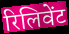
रिलिवेंट